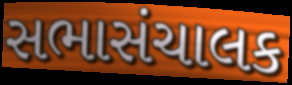
સભાસંચાલક